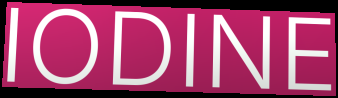
IODINE